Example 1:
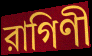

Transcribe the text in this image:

রাগিণী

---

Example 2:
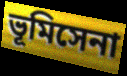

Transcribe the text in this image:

ভূমিসেনা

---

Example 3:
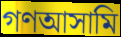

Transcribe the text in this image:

গণআসামি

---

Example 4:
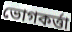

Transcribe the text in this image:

ভোগকর্ত্তা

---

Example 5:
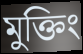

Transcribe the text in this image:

মুক্তিং